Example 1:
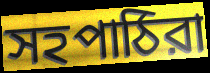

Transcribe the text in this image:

সহপাঠিরা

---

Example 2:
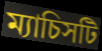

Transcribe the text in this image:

ম্যাচিসটি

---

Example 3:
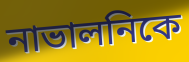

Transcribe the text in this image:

নাভালনিকে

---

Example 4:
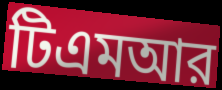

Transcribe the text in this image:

টিএমআর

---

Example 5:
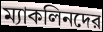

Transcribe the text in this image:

ম্যাকলিনদের